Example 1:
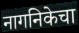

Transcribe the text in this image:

नागनिकेचा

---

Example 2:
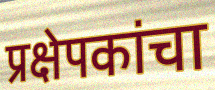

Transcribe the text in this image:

प्रक्षेपकांचा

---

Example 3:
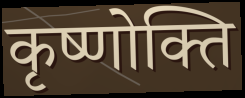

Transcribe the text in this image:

कृष्णोक्ति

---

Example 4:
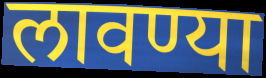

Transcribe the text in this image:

लावण्या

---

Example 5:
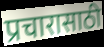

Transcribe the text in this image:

प्रचारासाठी